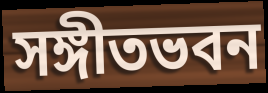
সঙ্গীতভবন